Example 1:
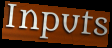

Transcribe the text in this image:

Inputs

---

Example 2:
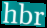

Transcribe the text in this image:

hbr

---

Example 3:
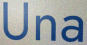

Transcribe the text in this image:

Una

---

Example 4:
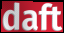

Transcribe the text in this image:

daft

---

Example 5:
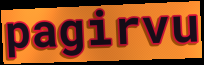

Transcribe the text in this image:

pagirvu